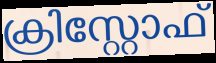
ക്രിസ്റ്റോഫ്